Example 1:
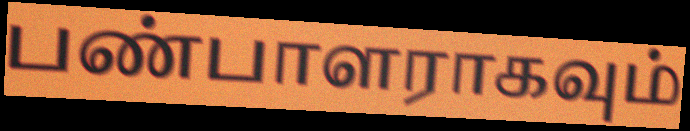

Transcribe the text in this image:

பண்பாளராகவும்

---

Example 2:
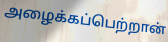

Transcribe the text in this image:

அழைக்கப்பெற்றான்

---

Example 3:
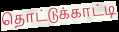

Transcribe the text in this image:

தொட்டுக்காட்டி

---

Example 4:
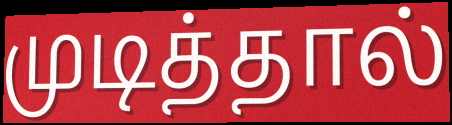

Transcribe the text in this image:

முடித்தால்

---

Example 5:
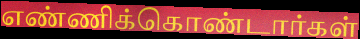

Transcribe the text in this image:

எண்ணிக்கொண்டார்கள்